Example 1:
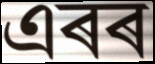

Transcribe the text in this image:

এৰৰ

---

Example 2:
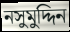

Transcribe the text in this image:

নসুমুদ্দিন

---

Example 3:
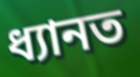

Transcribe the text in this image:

ধ্যানত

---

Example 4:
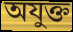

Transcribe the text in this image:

অযুক্ত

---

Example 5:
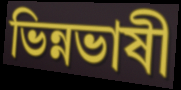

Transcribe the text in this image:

ভিন্নভাষী